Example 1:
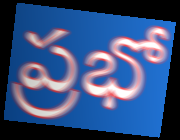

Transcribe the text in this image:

ప్రభో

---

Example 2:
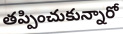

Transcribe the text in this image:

తప్పించుకున్నారో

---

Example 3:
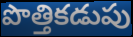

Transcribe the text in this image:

పొత్తికడుపు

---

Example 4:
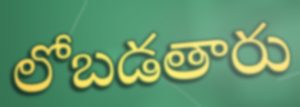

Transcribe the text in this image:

లోబడతారు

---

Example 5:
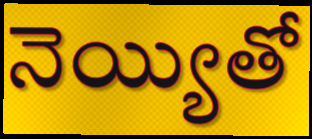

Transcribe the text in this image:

నెయ్యితో